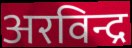
अरविन्द्र